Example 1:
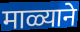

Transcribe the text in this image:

माळ्याने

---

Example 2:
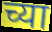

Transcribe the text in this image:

च्या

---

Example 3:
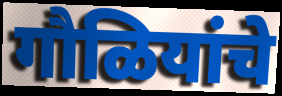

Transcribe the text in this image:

गौळियांचे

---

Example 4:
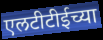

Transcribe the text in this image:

एलटीटीईच्या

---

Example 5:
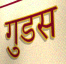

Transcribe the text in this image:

गुडस